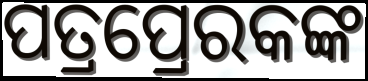
ପତ୍ରପ୍ରେରକଙ୍କ